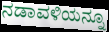
ನಡಾವಳಿಯನ್ನೂ